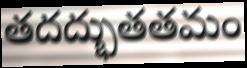
తదద్భుతతమం